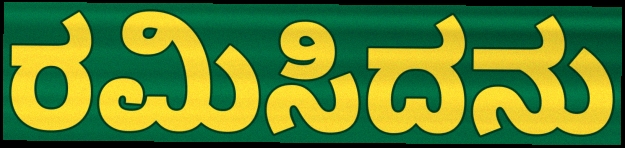
ರಮಿಸಿದನು